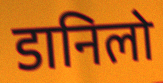
डानिलो